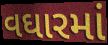
વઘારમાં